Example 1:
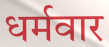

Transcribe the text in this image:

धर्मवार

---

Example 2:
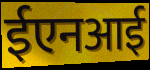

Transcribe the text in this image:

ईएनआई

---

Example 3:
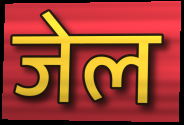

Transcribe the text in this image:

जेल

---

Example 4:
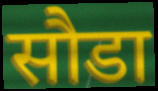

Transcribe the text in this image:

सौडा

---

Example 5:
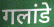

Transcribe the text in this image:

गलांडे